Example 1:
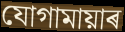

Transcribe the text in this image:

যোগামায়াৰ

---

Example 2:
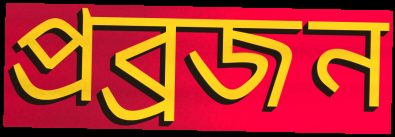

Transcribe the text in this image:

প্ৰব্ৰজন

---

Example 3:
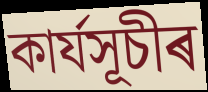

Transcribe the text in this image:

কাৰ্যসূচীৰ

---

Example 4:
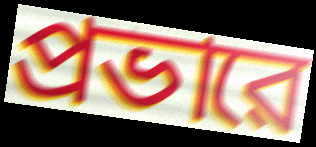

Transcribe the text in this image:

প্ৰভাৱে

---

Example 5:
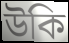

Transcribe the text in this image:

উকি